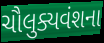
ચૌલુક્યવંશના